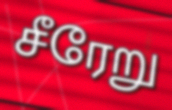
சீரேறு